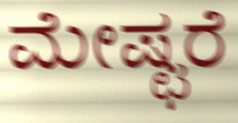
ಮೇಷ್ಟರೆ